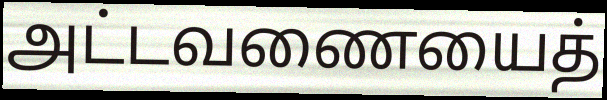
அட்டவணையைத்